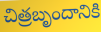
చిత్రబృందానికి